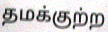
தமக்குற்ற